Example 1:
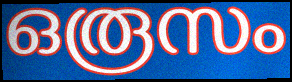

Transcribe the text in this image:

ഒരൂസം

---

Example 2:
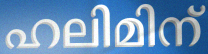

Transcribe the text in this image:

ഹലിമിന്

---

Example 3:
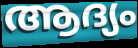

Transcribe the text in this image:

ആദ്യം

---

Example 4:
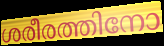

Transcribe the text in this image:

ശരീരത്തിനോ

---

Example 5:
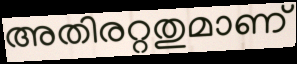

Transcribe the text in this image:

അതിരറ്റതുമാണ്